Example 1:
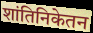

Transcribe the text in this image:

शांतिनिकेतन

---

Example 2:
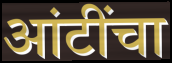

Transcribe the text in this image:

आंटींचा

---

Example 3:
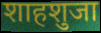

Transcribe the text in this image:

शाहशुजा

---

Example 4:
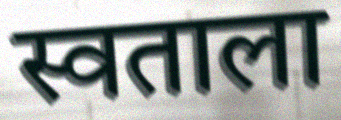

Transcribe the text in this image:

स्वताला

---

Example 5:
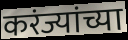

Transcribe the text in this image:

करंज्यांच्या